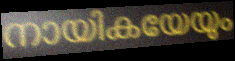
നായികയേയും